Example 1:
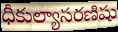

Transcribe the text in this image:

ధీకుల్యాసరణిషు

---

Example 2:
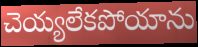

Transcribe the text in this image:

చెయ్యలేకపోయాను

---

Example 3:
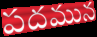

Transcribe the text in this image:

పదమున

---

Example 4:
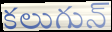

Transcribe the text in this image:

కలుగున్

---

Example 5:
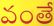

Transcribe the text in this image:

వంతే